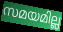
സമയമില്ല